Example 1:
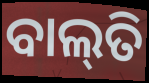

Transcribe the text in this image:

ବାଲ୍‌ତି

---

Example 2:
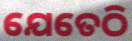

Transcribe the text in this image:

ଯେତେଠି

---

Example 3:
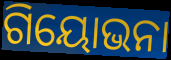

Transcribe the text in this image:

ଗିୟୋଭନା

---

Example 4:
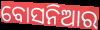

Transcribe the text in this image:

ବୋସନିଆର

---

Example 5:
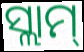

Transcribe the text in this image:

ସ୍ଲାମ୍